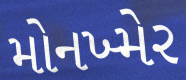
મોનખ્મેર